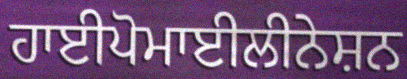
ਹਾਈਪੋਮਾਈਲੀਨੇਸ਼ਨ